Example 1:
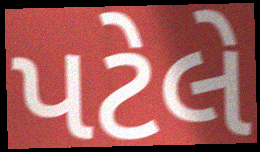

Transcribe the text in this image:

પટેલે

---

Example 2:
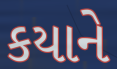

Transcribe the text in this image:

કયાને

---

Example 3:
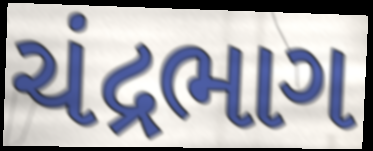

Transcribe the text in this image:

ચંદ્રભાગ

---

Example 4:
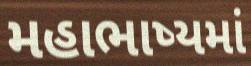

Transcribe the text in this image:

મહાભાષ્યમાં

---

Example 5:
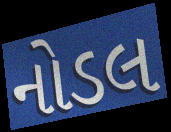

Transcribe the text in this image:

નોડલ